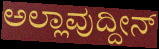
ಅಲ್ಲಾವುದ್ದೀನ್